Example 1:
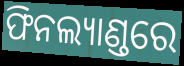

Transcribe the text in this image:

ଫିନଲ୍ୟାଣ୍ଡରେ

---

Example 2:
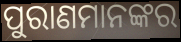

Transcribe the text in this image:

ପୁରାଣମାନଙ୍କର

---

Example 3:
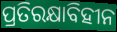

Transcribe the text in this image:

ପ୍ରତିରକ୍ଷାବିହୀନ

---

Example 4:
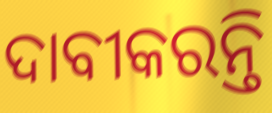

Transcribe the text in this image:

ଦାବୀକରନ୍ତି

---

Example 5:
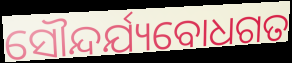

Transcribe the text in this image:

ସୌନ୍ଦର୍ଯ୍ୟବୋଧଗତ